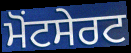
ਮੋਂਟਸੇਰਟ